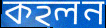
কহলন